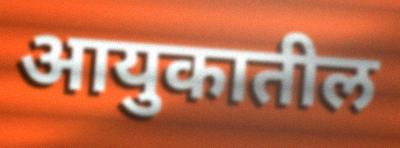
आयुकातील